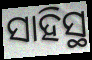
ସାହିସ୍ଥ